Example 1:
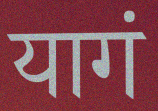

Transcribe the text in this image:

यागं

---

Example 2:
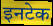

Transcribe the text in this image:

इनटेक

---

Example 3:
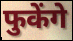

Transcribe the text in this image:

फुकेंगे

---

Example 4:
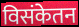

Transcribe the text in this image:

विसंकेतन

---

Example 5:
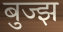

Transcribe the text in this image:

बुज्झ